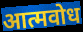
आत्मवोध